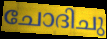
ചോദിചു